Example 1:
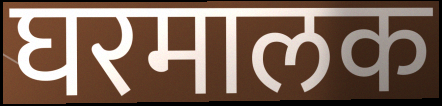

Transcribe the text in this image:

घरमालक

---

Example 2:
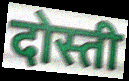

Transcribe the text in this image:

दोस्ती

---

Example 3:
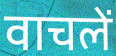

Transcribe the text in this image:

वाचलें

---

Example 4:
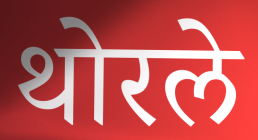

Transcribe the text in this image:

थोरले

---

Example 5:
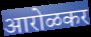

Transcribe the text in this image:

आरोळकर